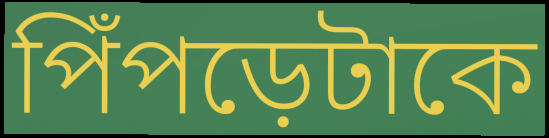
পিঁপড়েটাকে